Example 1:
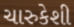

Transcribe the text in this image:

ચારુકેશી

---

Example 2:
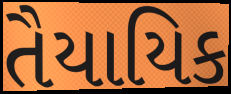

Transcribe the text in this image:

તૈયાયિક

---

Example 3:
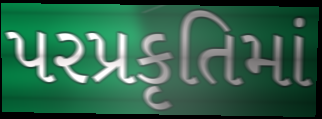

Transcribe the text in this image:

પરપ્રકૃતિમાં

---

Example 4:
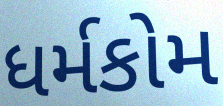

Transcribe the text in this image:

ધર્મકોમ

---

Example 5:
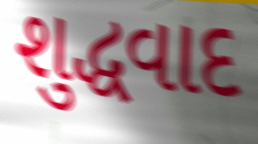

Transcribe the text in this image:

શુદ્ધવાદ